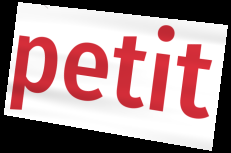
petit